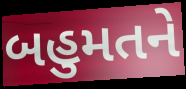
બહુમતને